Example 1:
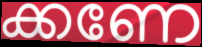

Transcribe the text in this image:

ക്കണേ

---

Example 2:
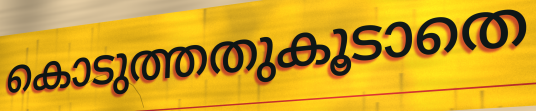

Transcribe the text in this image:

കൊടുത്തതുകൂടാതെ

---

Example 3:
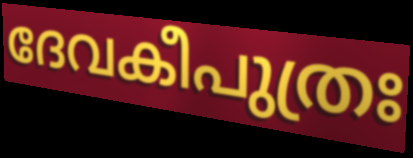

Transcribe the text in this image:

ദേവകീപുത്രഃ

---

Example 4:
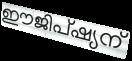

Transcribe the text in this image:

ഈജിപ്ഷ്യന്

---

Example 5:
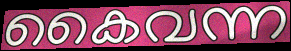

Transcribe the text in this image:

കൈവന്ന